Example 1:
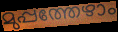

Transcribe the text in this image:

മുപ്പത്തേഴാം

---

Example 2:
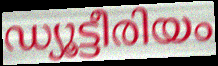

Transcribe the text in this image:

ഡ്യൂട്ടീരിയം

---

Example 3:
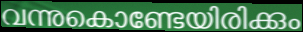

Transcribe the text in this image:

വന്നുകൊണ്ടേയിരിക്കും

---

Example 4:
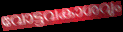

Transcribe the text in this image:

വോട്ടവകാശവും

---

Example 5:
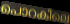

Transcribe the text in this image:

പൊറകിലെ